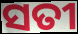
ସତୀ